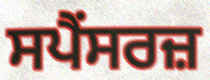
ਸਪੈਂਸਰਜ਼